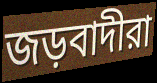
জড়বাদীরা